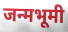
जन्मभूमी